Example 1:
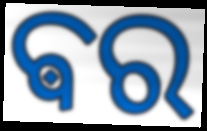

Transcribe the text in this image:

ଵର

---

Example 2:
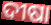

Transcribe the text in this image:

ଦୀଷା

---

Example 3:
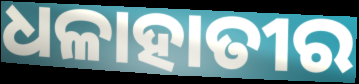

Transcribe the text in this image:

ଧଳାହାତୀର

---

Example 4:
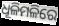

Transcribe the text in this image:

ଧୂଳିମଳିରେ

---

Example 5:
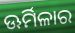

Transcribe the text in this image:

ଊର୍ମିଳାର